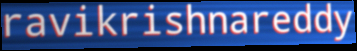
ravikrishnareddy